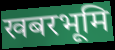
खबरभूमि